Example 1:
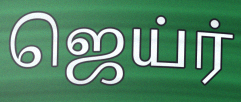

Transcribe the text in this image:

ஜெய்ர்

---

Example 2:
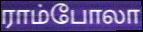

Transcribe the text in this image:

ராம்போலா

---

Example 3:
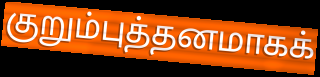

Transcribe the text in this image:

குறும்புத்தனமாகக்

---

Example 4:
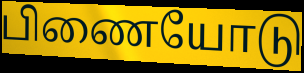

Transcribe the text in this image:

பிணையோடு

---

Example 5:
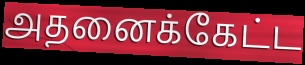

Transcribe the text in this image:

அதனைக்கேட்ட